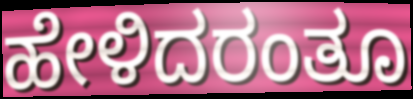
ಹೇಳಿದರಂತೂ